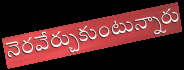
నెరవేర్చుకుంటున్నారు